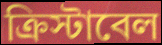
ক্রিস্টাবেল